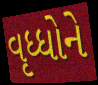
વૃધ્ધોને